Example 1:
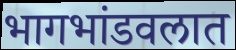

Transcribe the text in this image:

भागभांडवलात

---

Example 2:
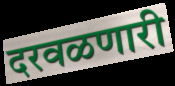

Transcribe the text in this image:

दरवळणारी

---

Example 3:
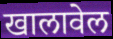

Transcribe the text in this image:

खालावेल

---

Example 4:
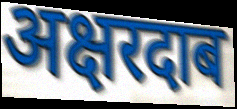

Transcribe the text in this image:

अक्षरदाब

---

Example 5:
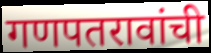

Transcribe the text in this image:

गणपतरावांची